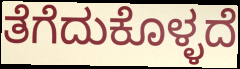
ತೆಗೆದುಕೊಳ್ಳದೆ